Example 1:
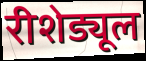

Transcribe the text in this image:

रीशेड्यूल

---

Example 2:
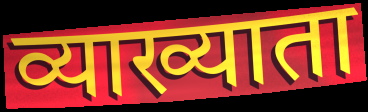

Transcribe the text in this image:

व्‍याख्‍याता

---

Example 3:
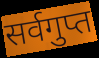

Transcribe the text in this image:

सर्वगुप्त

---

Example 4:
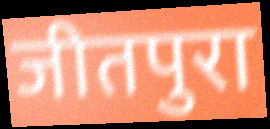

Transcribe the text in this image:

जीतपुरा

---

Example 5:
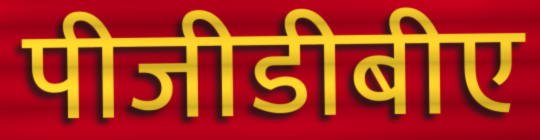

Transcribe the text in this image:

पीजीडीबीए